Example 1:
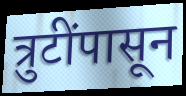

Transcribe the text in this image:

त्रुटींपासून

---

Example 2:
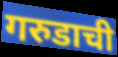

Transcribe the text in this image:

गरुडाची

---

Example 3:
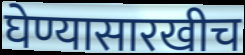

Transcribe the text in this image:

घेण्यासारखीच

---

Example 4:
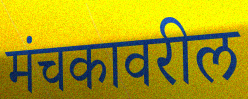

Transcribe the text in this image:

मंचकावरील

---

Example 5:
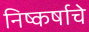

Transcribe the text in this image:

निष्कर्षाचे